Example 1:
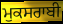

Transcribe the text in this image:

ਮੁਕਸਰਾਬੀ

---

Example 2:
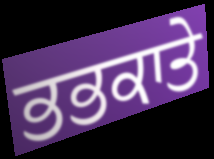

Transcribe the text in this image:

ਭਭਕਾਤੇ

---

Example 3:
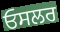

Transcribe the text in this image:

ਓਸਲਰ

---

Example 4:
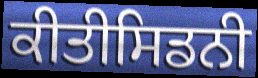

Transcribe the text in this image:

ਕੀਤੀਸਿਡਨੀ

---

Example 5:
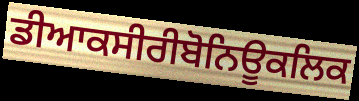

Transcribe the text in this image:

ਡੀਆਕਸੀਰੀਬੋਨਿਊਕਲਿਕ